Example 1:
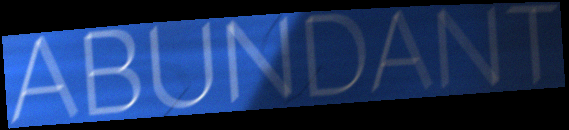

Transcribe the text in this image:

ABUNDANT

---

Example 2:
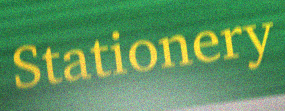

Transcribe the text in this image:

Stationery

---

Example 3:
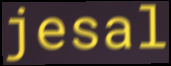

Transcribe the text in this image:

jesal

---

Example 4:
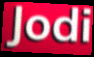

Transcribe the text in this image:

Jodi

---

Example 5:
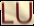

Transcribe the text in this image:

LU